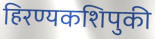
हिरण्यकशिपुकी